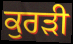
ਕੁਰੜੀ